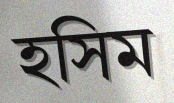
হসিম